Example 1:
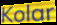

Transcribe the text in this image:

Kolar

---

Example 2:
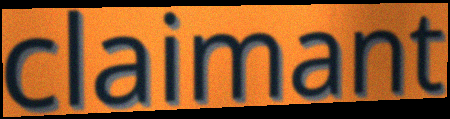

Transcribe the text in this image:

claimant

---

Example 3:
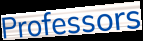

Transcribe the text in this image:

Professors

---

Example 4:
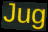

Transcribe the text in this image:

Jug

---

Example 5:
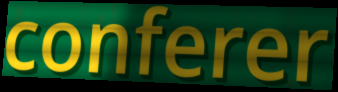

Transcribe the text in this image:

conferer